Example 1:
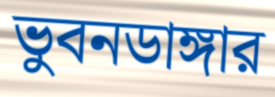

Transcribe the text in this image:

ভুবনডাঙ্গার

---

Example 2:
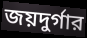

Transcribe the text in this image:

জয়দুর্গার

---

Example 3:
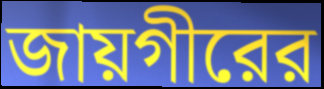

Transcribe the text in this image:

জায়গীরের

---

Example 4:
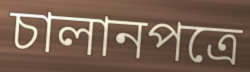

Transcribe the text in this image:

চালানপত্রে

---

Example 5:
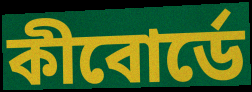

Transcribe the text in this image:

কীবোর্ডে